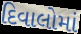
દિવાલોમાં